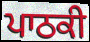
ਪਾਠਕੀ